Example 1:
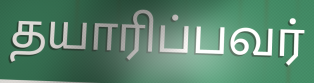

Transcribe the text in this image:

தயாரிப்பவர்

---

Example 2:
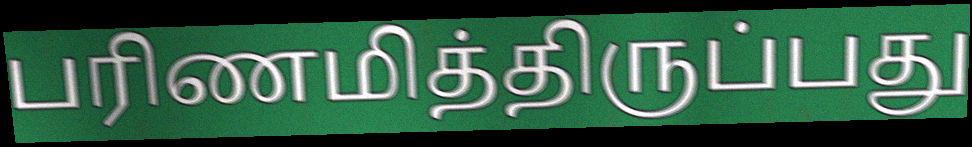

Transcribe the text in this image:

பரிணமித்திருப்பது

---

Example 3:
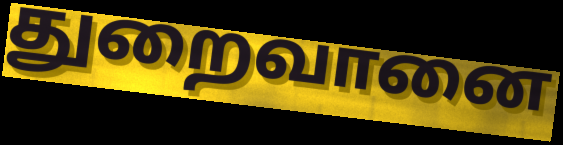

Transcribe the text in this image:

துறைவானை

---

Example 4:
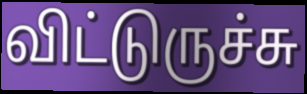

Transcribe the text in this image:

விட்டுருச்சு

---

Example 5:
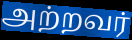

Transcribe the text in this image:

அற்றவர்